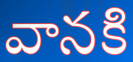
వానకి